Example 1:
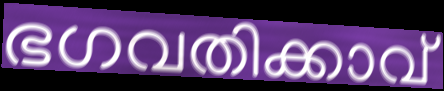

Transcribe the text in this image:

ഭഗവതിക്കാവ്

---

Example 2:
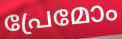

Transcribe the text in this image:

പ്രേമോം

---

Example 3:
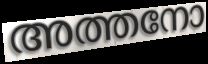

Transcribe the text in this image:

അത്തനോ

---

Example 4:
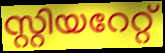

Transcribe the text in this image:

സ്റ്റിയറേറ്റ്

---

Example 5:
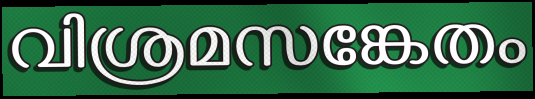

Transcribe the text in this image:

വിശ്രമസങ്കേതം